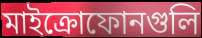
মাইক্রোফোনগুলি